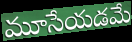
మూసేయడమే